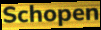
Schopen